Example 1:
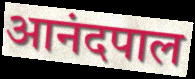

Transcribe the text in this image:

आनंदपाल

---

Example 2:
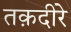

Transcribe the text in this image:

तक़दीरे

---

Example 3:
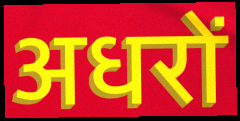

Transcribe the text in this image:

अधरों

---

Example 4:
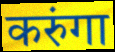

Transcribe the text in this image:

करुंगा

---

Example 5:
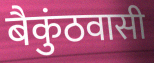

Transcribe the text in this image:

बैकुंठवासी